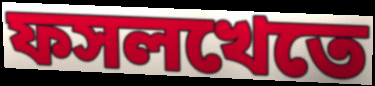
ফসলখেতে